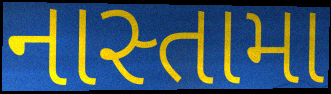
નાસ્તામા